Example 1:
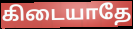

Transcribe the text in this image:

கிடையாதே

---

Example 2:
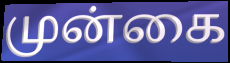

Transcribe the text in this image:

முன்கை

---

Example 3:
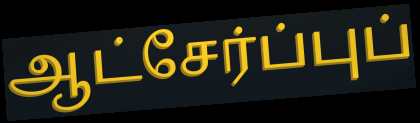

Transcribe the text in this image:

ஆட்சேர்ப்புப்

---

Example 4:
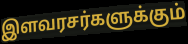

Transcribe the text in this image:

இளவரசர்களுக்கும்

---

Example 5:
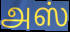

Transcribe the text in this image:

அஸ்